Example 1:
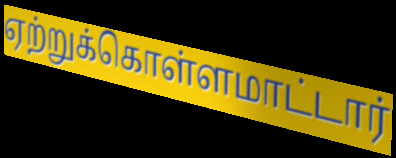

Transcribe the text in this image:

ஏற்றுக்கொள்ளமாட்டார்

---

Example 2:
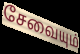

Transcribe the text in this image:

சேவையும்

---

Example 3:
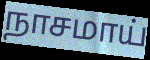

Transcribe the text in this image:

நாசமாய்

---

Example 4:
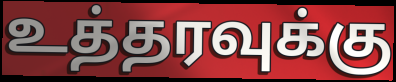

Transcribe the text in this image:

உத்தரவுக்கு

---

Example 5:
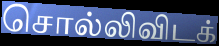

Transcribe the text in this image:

சொல்லிவிடக்